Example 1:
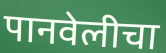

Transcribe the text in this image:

पानवेलीचा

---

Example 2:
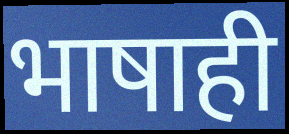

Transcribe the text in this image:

भाषाही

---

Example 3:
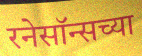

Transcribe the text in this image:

रनेसॉन्सच्या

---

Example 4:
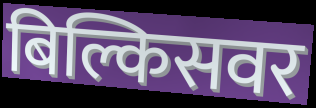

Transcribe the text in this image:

बिल्किसवर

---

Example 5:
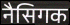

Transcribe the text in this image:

नैसिगक